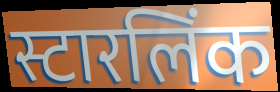
स्‍टारलिंक